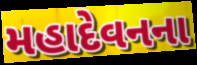
મહાદેવનના